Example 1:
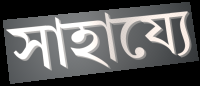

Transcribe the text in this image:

সাহায্যে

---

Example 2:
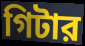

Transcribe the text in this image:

গিটার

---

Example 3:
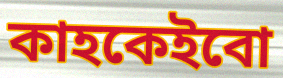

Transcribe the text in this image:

কাহকেইবো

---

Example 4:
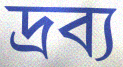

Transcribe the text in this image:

দ্রব্য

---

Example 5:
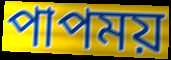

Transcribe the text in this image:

পাপময়